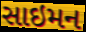
સાઇમન